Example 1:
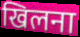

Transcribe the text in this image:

खिलना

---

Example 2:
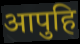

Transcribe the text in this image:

आपुहि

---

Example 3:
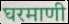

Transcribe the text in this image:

घरमाणी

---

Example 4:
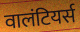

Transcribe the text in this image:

वालंटियर्स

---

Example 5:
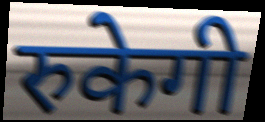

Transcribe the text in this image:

रुकेगी